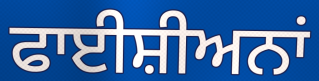
ਫਾਈਸ਼ੀਅਨਾਂ